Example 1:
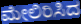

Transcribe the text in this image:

ಮೇಲಿರಿಸಿದ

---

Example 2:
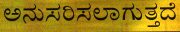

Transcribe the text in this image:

ಅನುಸರಿಸಲಾಗುತ್ತದೆ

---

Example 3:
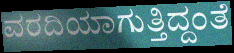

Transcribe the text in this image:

ವರದಿಯಾಗುತ್ತಿದ್ದಂತೆ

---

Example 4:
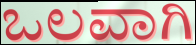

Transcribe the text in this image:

ಒಲವಾಗಿ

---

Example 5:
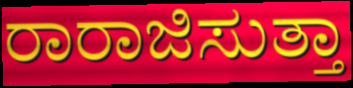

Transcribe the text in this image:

ರಾರಾಜಿಸುತ್ತಾ